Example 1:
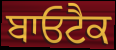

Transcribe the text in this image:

ਬਾਓਟੈਕ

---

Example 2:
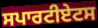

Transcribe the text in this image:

ਸਪਾਰਟੀਏਟਸ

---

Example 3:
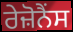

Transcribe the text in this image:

ਰੇਜ਼ੋਨੈਂਸ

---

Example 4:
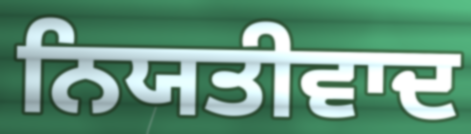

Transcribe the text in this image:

ਨਿਯਤੀਵਾਦ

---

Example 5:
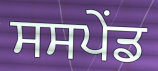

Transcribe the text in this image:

ਸਸਪੇੰਡ